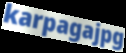
karpagajpg